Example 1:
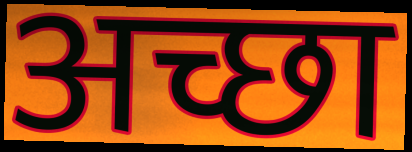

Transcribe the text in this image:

अच्‍छा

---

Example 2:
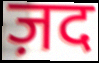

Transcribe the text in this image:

ज़द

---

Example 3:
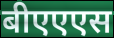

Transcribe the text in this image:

बीएएएस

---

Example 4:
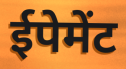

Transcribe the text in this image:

ईपेमेंट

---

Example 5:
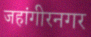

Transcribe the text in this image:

जहांगीरनगर